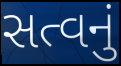
સત્વનું